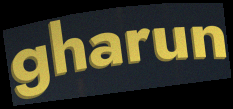
gharun